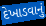
દેખાડવાનું